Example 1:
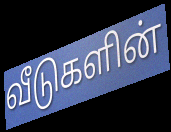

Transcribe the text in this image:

வீடுகளின்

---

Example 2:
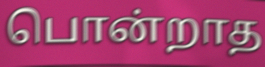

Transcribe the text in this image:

பொன்றாத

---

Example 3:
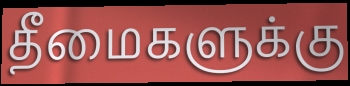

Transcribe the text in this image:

தீமைகளுக்கு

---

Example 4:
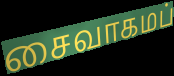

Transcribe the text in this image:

சைவாகமப்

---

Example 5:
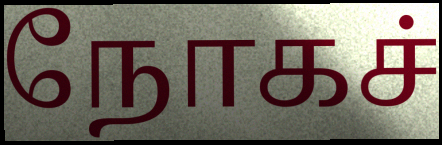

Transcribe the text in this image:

நோகச்